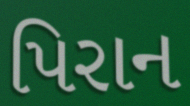
પિરાન